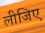
लीजिए